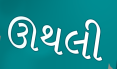
ઊથલી